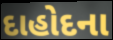
દાહોદના